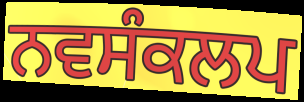
ਨਵਸੰਕਲਪ